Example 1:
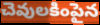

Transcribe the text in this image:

చెవులకింపైన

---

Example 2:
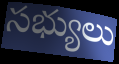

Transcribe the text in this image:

సభ్యులు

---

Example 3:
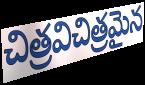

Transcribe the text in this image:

చిత్రవిచిత్రమైన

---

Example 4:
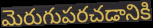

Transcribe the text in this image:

మెరుగుపరచడానికి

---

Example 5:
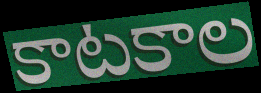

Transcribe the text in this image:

కాటకాల